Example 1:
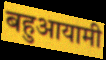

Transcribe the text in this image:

बहुआयामी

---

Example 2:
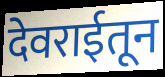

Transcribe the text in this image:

देवराईतून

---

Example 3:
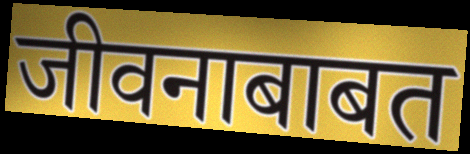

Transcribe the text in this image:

जीवनाबाबत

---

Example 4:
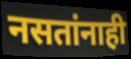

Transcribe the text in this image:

नसतांनाही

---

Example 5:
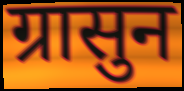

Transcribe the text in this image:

ग्रासुन